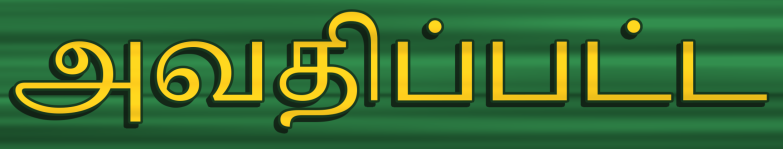
அவதிப்பட்ட